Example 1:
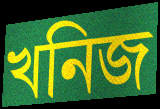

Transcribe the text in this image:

খনিজ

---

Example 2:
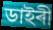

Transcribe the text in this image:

ডাইৰী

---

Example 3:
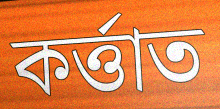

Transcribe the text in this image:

কৰ্ত্তাত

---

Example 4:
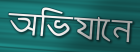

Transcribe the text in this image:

অভিযানে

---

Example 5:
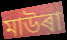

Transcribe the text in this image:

মাউৰা